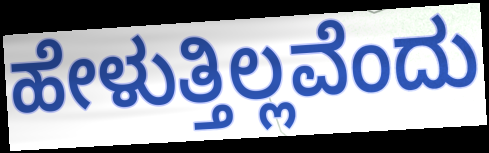
ಹೇಳುತ್ತಿಲ್ಲವೆಂದು